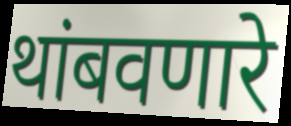
थांबवणारे